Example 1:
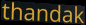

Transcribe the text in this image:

thandak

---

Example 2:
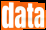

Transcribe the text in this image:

data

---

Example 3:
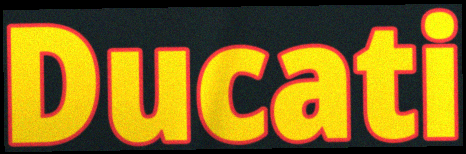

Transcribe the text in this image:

Ducati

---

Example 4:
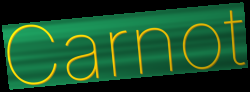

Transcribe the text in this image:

Carnot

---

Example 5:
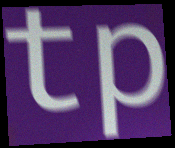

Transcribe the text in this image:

tp